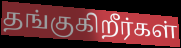
தங்குகிறீர்கள்